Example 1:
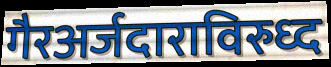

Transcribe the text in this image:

गैरअर्जदाराविरुध्द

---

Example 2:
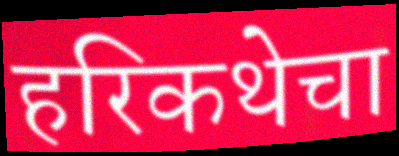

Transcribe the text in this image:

हरिकथेचा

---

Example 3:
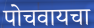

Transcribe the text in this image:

पोचवायचा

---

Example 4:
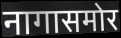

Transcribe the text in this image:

नागासमोर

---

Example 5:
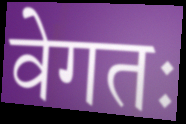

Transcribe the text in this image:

वेगतः